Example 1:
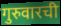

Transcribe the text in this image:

गुरुवारची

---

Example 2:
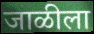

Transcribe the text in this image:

जाळीला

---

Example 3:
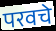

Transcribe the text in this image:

परवचे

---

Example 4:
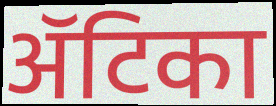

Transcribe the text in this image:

ॲटिका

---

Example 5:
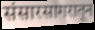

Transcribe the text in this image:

संसारसागरातून